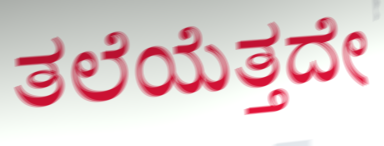
ತಲೆಯೆತ್ತದೇ